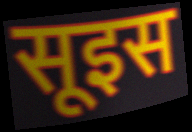
सूइस